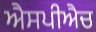
ਐਸਪੀਐਚ